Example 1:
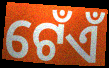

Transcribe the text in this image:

ଟେଁଏଁ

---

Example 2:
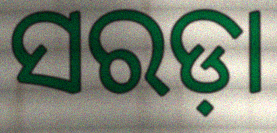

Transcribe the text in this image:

ସରଡ଼ା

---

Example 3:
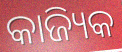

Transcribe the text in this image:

କାଜ୍ୟିକ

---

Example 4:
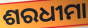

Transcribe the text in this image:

ଶରଧୀମା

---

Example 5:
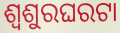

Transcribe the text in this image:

ଶ୍ୱଶୁରଘରଟା